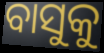
ବାସୁକୁ